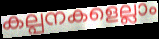
കല്പനകളെല്ലാം